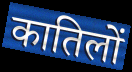
कातिलों